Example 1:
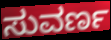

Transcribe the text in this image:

ಸುವರ್ಣ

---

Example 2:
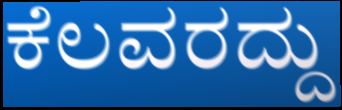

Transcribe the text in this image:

ಕೆಲವರದ್ದು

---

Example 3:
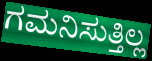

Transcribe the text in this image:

ಗಮನಿಸುತ್ತಿಲ್ಲ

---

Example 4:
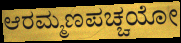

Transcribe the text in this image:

ಆರಮ್ಮಣಪಚ್ಚಯೋ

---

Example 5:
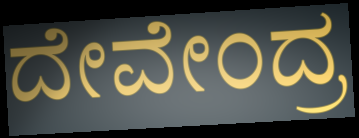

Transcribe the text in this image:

ದೇವೇಂದ್ರ